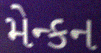
મેન્કન